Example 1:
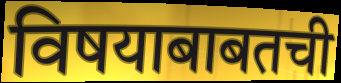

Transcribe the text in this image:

विषयाबाबतची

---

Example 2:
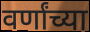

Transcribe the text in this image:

वर्णांच्या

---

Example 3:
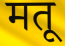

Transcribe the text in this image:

मतू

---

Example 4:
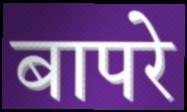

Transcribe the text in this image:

बापरे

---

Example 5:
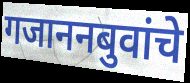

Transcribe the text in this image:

गजाननबुवांचे